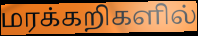
மரக்கறிகளில்